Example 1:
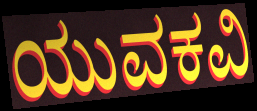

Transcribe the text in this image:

ಯುವಕವಿ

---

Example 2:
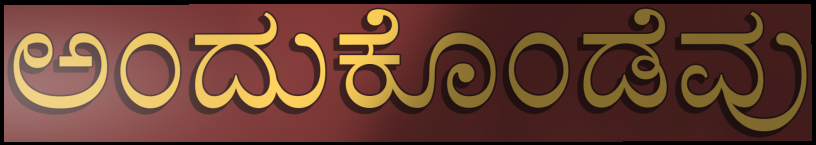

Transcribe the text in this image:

ಅಂದುಕೊಂಡೆವು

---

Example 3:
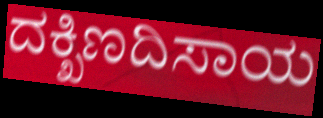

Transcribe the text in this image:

ದಕ್ಖಿಣದಿಸಾಯ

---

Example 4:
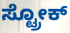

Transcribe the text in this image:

ಸ್ಟ್ರೋಕ್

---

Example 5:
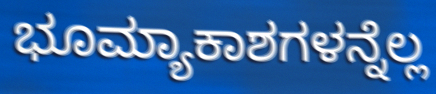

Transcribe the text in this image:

ಭೂಮ್ಯಾಕಾಶಗಳನ್ನೆಲ್ಲ